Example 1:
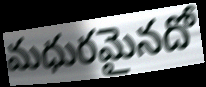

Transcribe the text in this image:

మధురమైనదో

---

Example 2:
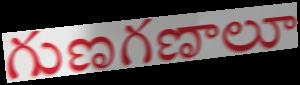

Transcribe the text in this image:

గుణగణాలూ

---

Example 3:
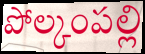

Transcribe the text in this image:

పోల్కంపల్లి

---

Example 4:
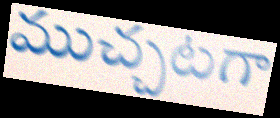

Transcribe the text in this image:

ముచ్చటగా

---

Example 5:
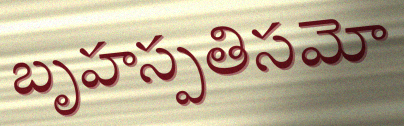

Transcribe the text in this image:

బృహస్పతిసమో